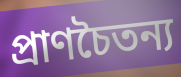
প্রাণচৈতন্য